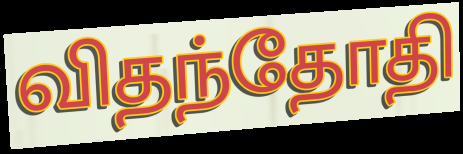
விதந்தோதி